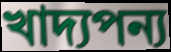
খাদ্যপন্য